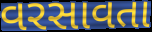
વરસાવતા